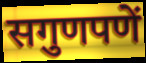
सगुणपणें